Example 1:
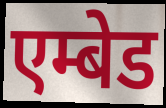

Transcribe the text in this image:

एम्बेड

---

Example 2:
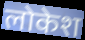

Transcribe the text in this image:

लोकेश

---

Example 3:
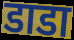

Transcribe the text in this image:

डाडा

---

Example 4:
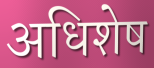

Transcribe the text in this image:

अधिशेष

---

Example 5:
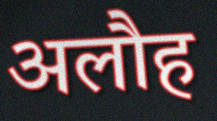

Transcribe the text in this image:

अलौह